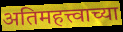
अतिमहत्त्वाच्या